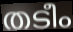
തടീം